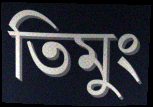
তিমুং